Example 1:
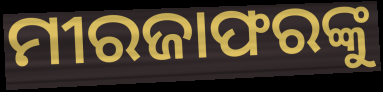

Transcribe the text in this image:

ମୀରଜାଫରଙ୍କୁ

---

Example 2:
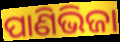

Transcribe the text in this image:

ପାଣିଭିଜା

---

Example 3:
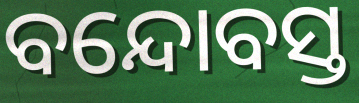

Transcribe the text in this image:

ବନ୍ଦୋବସ୍ତ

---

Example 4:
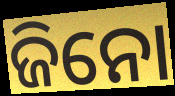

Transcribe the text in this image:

ଜିନୋ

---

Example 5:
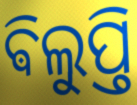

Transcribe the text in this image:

ଵିଲୁପ୍ତି